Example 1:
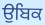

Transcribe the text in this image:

ਉਬਿਕ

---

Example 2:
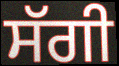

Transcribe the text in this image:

ਸੱਗੀ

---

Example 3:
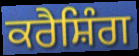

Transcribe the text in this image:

ਕਰੈਸ਼ਿੰਗ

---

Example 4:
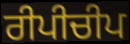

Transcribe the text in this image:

ਰੀਪੀਚੀਪ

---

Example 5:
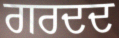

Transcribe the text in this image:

ਗਰਦਦ